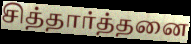
சித்தார்த்தனை